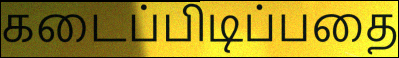
கடைப்பிடிப்பதை